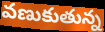
వణుకుతున్న